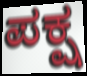
ಪಕ್ಷ